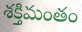
శక్తిమంతం